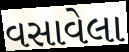
વસાવેલા